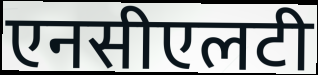
एनसीएलटी